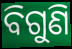
ବିଗୁଣି